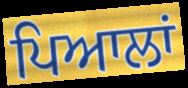
ਪਿਆਲਾਂ